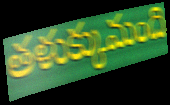
తళుక్కుమంది